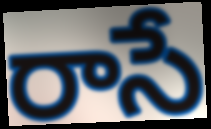
రాసే